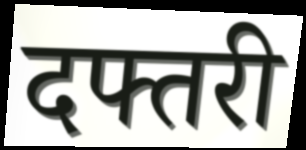
दफ्तरी